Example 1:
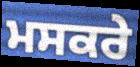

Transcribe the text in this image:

ਮਸਕਰੇ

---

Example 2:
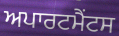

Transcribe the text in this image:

ਅਪਾਰਟਮੈਂਟਸ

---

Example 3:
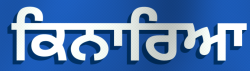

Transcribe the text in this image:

ਕਿਨਾਰਿਆ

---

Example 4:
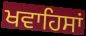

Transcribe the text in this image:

ਖਵਾਹਿਸਾਂ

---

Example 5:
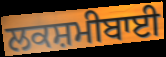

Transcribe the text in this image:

ਲਕਸ਼ਮੀਬਾਈ